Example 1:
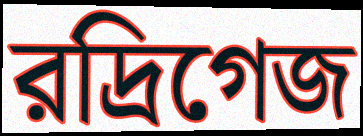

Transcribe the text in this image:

রদ্রিগেজ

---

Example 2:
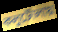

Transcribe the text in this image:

কলুটোলায়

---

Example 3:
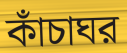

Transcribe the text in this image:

কাঁচাঘর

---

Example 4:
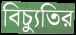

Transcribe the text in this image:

বিচ্যুতির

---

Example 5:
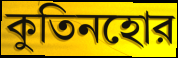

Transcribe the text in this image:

কুতিনহোর